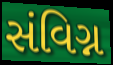
સંવિગ્ન